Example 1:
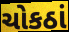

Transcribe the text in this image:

ચોકઠાં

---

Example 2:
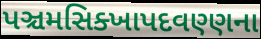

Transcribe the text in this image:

પઞ્ચમસિક્ખાપદવણ્ણના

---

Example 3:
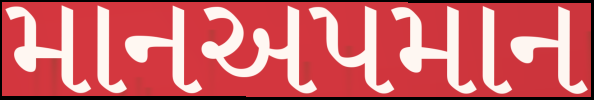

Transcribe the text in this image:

માનઅપમાન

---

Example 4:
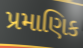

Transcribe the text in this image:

પ્રમાણિક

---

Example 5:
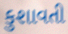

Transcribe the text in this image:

કુશાવતી